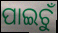
ପାଇଚୁଁ